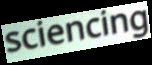
sciencing